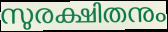
സുരക്ഷിതനും